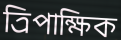
ত্ৰিপাক্ষিক